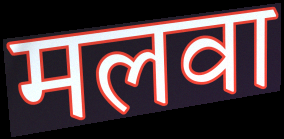
मलवा